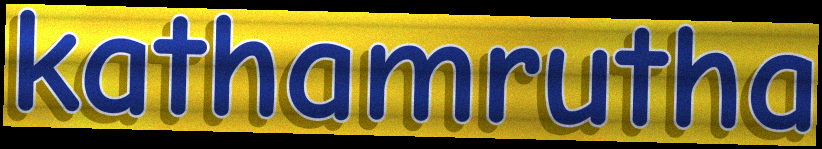
kathamrutha